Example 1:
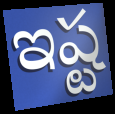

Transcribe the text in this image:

ఇష్ట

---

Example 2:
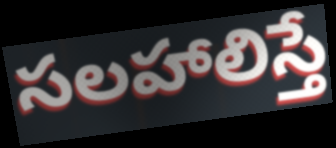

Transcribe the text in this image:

సలహాలిస్తే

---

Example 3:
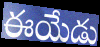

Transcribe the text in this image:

ఈయేడు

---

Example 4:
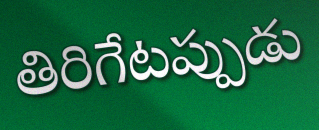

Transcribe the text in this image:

తిరిగేటప్పుడు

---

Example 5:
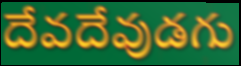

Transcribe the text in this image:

దేవదేవుడగు